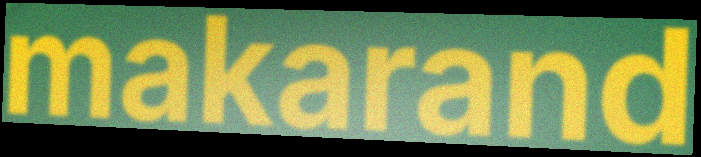
makarand